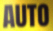
AUTO